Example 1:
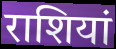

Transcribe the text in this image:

राशियां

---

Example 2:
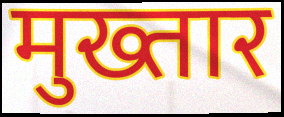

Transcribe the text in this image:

मुख्तार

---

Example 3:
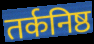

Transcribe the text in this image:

तर्कनिष्ठ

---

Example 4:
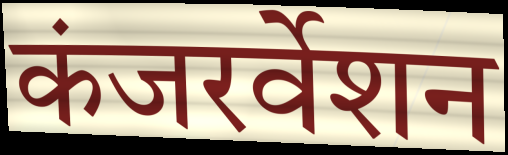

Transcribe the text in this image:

कंजरर्वेशन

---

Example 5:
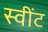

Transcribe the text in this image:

स्वींट